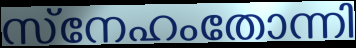
സ്‌നേഹംതോന്നി